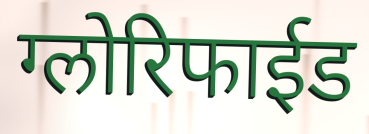
ग्लोरिफाईड